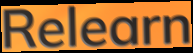
Relearn